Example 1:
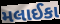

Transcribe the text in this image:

મલાઈકા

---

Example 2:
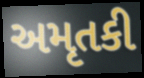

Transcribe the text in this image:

અમૃતકી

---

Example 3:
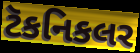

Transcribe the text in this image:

ટૅકનિકલર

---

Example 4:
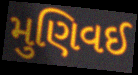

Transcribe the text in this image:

મુણિવઈ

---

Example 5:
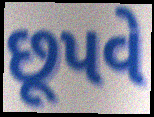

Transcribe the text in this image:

છૂપવે